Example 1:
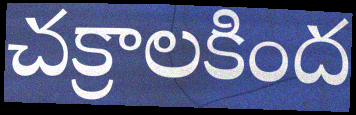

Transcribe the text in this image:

చక్రాలకింద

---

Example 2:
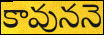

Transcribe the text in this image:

కావుననె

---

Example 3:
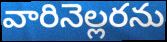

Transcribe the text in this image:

వారినెల్లరను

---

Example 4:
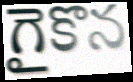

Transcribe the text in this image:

గైకొన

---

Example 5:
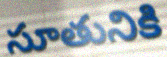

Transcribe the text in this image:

సూతునికి